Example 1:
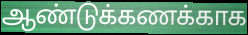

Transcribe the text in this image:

ஆண்டுக்கணக்காக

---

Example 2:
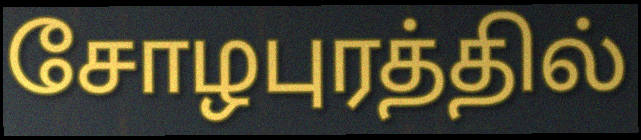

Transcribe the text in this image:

சோழபுரத்தில்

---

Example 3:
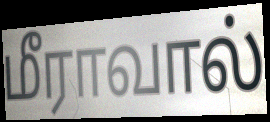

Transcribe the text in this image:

மீராவால்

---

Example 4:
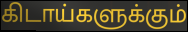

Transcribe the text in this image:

கிடாய்களுக்கும்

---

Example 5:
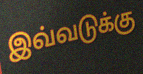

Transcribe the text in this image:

இவ்வடுக்கு